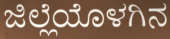
ಜಿಲ್ಲೆಯೊಳಗಿನ